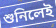
শুনিলেই